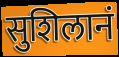
सुशिलानं